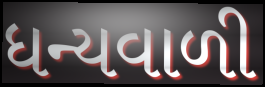
ધન્યવાળી